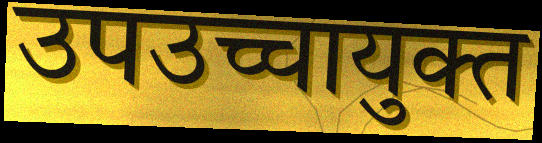
उपउच्चायुक्त